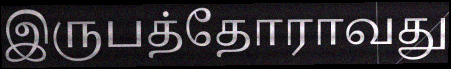
இருபத்தோராவது